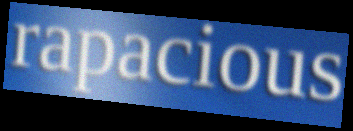
rapacious